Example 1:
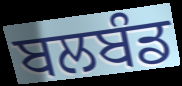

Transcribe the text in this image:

ਬਲਬੰਡ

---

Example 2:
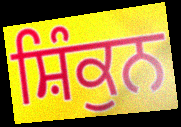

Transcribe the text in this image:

ਸ਼ਿੰਕੁਨ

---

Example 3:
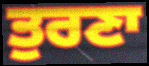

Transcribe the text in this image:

ਤੁਰਣਾ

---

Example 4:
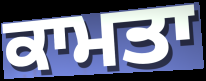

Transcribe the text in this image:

ਕਾਮਤਾ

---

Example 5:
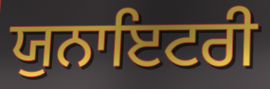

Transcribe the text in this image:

ਯੁਨਾਇਟਰੀ